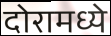
दोरामध्ये